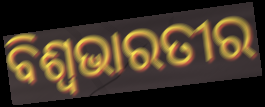
ବିଶ୍ୱଭାରତୀର